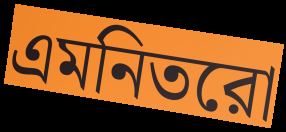
এমনিতরো